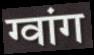
ग्वांग